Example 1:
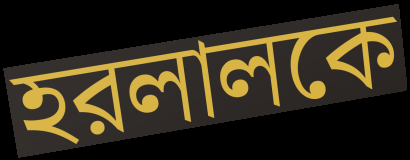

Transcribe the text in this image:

হরলালকে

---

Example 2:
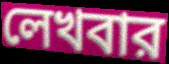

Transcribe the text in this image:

লেখবার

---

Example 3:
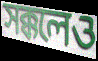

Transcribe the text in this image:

সক্কলেও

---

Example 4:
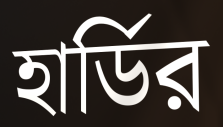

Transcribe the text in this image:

হার্ডির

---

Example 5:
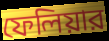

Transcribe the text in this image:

ফেলিয়ার